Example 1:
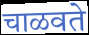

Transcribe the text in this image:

चाळवते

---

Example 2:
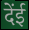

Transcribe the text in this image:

देंई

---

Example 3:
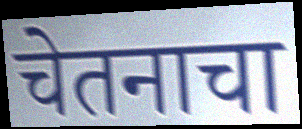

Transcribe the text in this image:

चेतनाचा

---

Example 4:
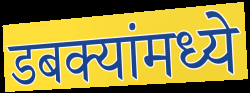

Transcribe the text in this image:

डबक्यांमध्ये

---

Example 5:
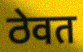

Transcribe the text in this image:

ठेवत